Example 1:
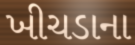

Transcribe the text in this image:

ખીચડાના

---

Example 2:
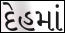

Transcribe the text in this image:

દેહમાં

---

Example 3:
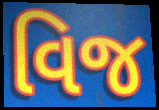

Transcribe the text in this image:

વિજ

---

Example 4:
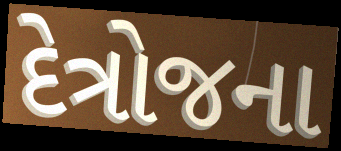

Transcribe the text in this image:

દેત્રોજના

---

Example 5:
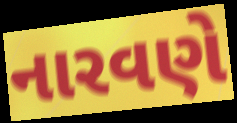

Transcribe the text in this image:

નારવણે